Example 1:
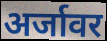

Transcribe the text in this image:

अर्जावर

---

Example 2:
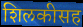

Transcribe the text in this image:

शिलकीसह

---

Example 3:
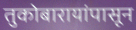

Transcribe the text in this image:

तुकोबारायांपासून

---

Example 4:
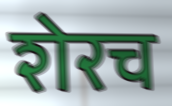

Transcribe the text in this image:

शेरच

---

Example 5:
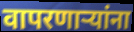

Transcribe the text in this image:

वापरणाऱ्यांना